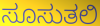
ಸೂಸುತಲಿ